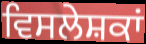
ਵਿਸਲੇਸ਼ਕਾਂ